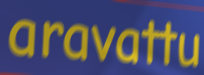
aravattu